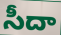
సీదా